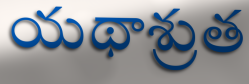
యథాశ్రుత